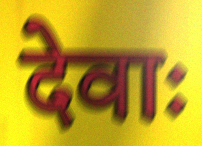
देवाः